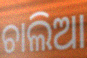
ଚାଲିଆ